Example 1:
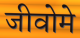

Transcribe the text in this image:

जीवोमे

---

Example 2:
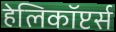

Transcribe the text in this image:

हेलिकॉप्टर्स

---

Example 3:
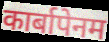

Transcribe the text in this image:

कार्बापेनम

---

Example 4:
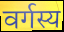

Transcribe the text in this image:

वर्गस्य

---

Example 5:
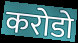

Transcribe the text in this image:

करोडो